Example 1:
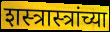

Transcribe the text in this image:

शस्त्रास्त्रांच्या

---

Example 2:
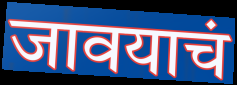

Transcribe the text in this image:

जावयाचं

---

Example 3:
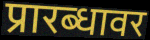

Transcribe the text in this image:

प्रारब्धावर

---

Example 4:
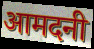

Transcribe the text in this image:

आमदनी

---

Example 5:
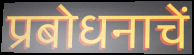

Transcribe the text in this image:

प्रबोधनाचें